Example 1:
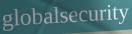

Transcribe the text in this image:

globalsecurity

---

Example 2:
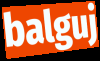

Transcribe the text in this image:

balguj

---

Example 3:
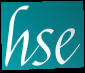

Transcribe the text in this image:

hse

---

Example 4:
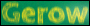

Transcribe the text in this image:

Gerow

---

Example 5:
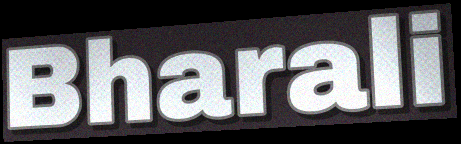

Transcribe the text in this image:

Bharali